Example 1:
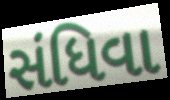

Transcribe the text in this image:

સંધિવા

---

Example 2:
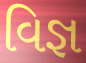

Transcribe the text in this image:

વિજ્ઞ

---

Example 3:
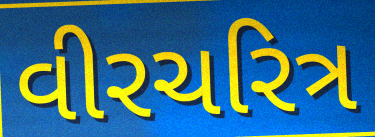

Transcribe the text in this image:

વીરચરિત્ર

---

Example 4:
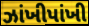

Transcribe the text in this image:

ઝાંખીપાંખી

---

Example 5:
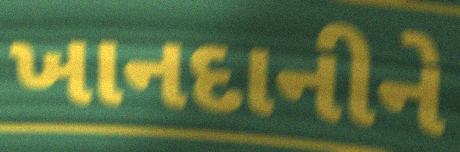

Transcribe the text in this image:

ખાનદાનીને